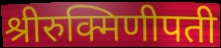
श्रीरुक्मिणीपती